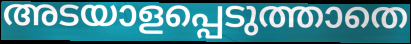
അടയാളപ്പെടുത്താതെ